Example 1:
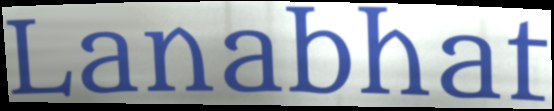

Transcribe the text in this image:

Lanabhat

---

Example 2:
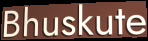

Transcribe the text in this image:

Bhuskute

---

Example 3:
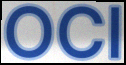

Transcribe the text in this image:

OCI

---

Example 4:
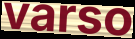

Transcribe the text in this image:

varso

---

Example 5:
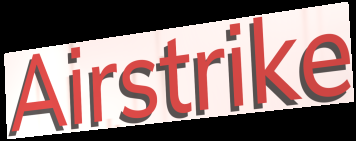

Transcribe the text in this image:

Airstrike